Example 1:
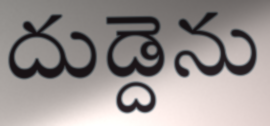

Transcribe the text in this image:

దుడ్దెను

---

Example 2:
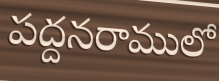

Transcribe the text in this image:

పద్దనరాములో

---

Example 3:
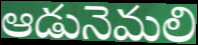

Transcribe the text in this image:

ఆడునెమలి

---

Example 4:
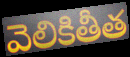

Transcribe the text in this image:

వెలికితీత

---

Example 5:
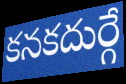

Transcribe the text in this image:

కనకదుర్గే